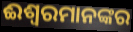
ଈଶ୍ୱରମାନଙ୍କର